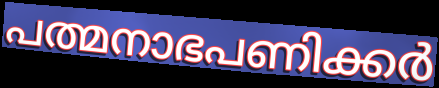
പത്മനാഭപണിക്കർ